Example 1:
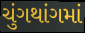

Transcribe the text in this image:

ચુંગથાંગમાં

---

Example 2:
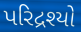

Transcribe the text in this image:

પરિદ્રશ્યો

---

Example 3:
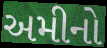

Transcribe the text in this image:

અમીનો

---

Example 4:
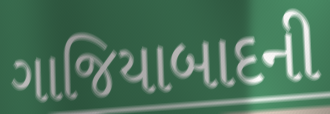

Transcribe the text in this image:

ગાજિયાબાદની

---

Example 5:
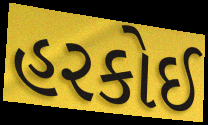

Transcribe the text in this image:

હરકોઈ